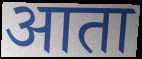
आता